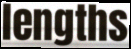
lengths